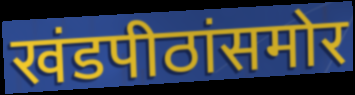
खंडपीठांसमोर